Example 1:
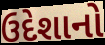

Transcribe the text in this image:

ઉદેશાનો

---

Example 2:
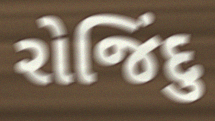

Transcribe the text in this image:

રોજિંદુ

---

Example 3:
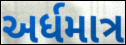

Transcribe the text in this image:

અર્ધમાત્ર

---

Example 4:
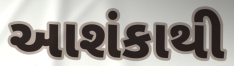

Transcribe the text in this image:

આશંકાથી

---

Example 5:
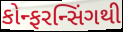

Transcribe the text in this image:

કોન્ફરન્સિંગથી